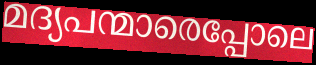
മദ്യപന്മാരെപ്പോലെ